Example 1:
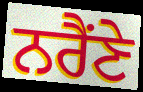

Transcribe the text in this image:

ਨਰੈਂਣੇ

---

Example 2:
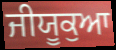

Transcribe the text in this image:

ਜੀਯੂਕੁਆ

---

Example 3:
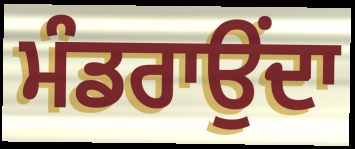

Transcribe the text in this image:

ਮੰਡਰਾਉਂਦਾ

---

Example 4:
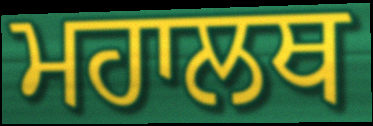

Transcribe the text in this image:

ਮਹਾਲਥ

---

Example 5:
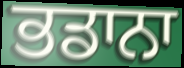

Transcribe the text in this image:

ਭਡਾਨਾ